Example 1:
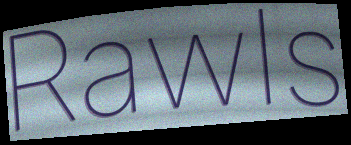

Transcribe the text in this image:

Rawls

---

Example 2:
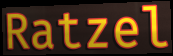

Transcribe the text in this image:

Ratzel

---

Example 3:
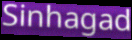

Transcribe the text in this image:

Sinhagad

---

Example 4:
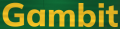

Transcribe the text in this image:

Gambit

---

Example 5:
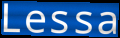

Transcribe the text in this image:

Lessa